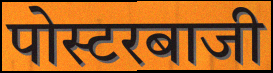
पोस्टरबाजी